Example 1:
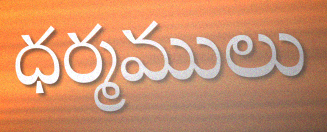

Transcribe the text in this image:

ధర్మములు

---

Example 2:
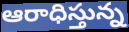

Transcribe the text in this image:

ఆరాధిస్తున్న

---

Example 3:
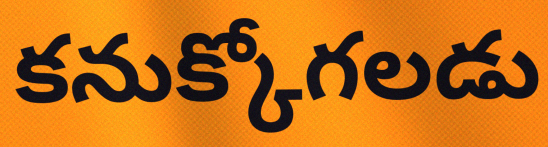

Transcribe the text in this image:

కనుక్కోగలడు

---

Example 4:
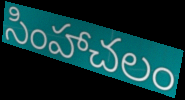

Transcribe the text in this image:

సింహాచలం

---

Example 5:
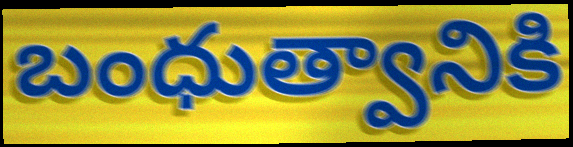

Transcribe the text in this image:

బంధుత్వానికి